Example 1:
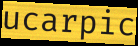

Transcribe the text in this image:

ucarpic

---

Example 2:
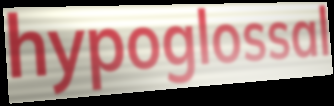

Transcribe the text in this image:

hypoglossal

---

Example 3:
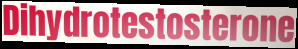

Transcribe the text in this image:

Dihydrotestosterone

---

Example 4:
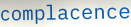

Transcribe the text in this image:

complacence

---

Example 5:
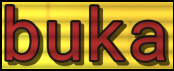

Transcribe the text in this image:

buka